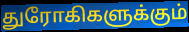
துரோகிகளுக்கும்